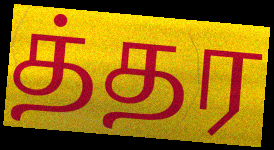
த்தர